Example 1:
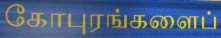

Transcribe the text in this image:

கோபுரங்களைப்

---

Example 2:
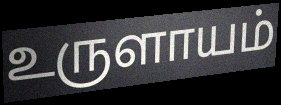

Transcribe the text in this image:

உருளாயம்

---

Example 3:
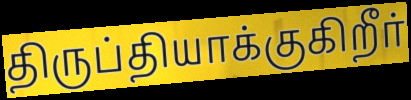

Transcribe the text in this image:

திருப்தியாக்குகிறீர்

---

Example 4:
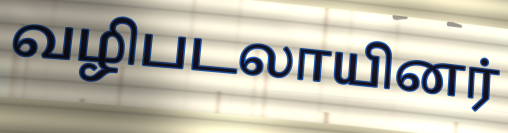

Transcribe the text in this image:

வழிபடலாயினர்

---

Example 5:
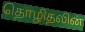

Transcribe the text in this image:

தொழிதலின்